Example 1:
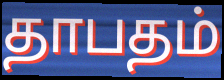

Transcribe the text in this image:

தாபதம்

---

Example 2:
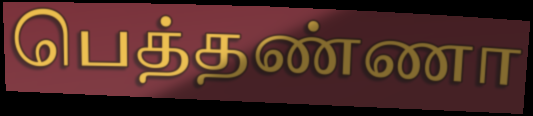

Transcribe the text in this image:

பெத்தண்ணா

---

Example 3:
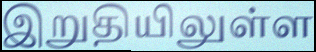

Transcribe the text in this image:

இறுதியிலுள்ள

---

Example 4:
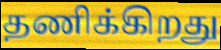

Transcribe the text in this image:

தணிக்கிறது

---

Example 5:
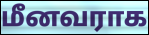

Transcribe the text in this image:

மீனவராக